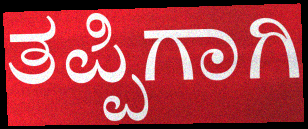
ತಪ್ಪಿಗಾಗಿ